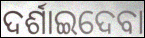
ଦର୍ଶାଇଦେବା